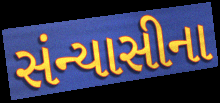
સંન્યાસીના